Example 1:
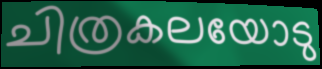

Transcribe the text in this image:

ചിത്രകലയോടു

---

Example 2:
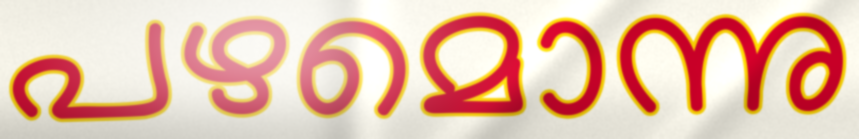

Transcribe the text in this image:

പഴമൊന്നു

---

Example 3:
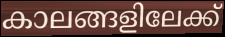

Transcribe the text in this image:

കാലങ്ങളിലേക്ക്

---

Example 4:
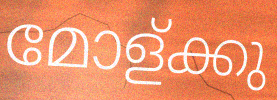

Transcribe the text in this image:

മോള്ക്കു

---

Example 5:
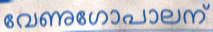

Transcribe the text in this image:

വേണുഗോപാലന്